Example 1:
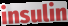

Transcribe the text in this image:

insulin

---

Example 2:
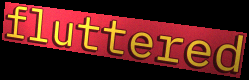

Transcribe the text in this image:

fluttered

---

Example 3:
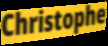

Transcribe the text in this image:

Christophe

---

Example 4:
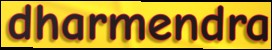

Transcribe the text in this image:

dharmendra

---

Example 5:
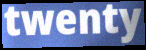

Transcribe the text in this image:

twenty